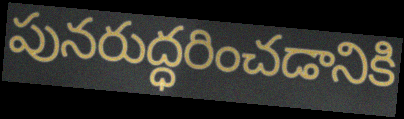
పునరుద్ధరించడానికి